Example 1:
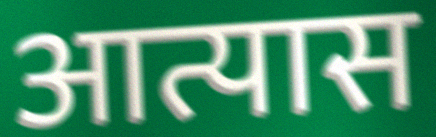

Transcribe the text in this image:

आत्यास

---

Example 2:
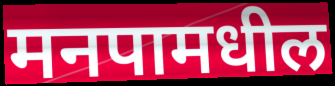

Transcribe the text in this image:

मनपामधील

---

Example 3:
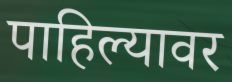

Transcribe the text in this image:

पाहिल्‍यावर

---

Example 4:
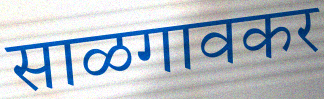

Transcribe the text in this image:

साळगावकर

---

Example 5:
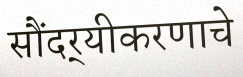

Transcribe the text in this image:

सौंदर्यीकरणाचे